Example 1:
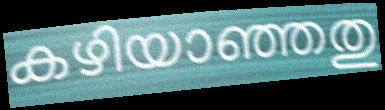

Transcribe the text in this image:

കഴിയാഞ്ഞതു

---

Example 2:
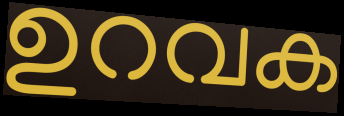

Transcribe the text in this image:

ഉറവക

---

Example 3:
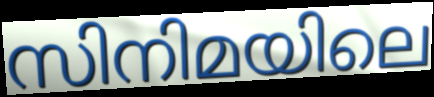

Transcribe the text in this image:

സിനിമയിലെ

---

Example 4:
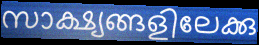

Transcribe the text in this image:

സാക്ഷ്യങ്ങളിലേക്കു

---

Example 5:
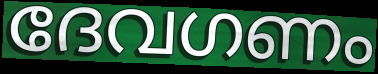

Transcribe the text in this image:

ദേവഗണം